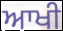
ਆਖੀ